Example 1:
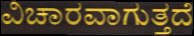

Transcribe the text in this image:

ವಿಚಾರವಾಗುತ್ತದೆ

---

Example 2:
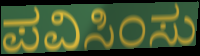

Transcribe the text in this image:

ಪವಿಸಿಂಸು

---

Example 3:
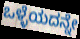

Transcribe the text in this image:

ಒಳ್ಳೆಯದನ್ನೇ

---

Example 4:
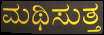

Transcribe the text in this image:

ಮಥಿಸುತ್ತ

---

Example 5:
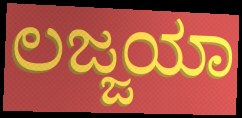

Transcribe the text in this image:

ಲಜ್ಜಯಾ